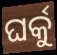
ଘର୍କୁ